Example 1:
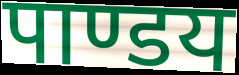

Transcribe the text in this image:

पाण्डय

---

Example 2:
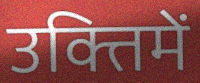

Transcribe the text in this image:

उक्तिमें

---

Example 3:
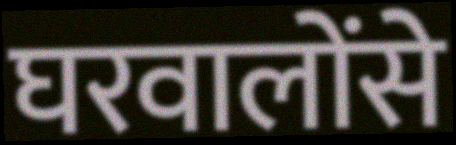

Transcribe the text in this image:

घरवालोंसे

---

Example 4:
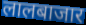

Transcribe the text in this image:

लालबाजार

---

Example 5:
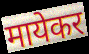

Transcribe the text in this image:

मायेकर